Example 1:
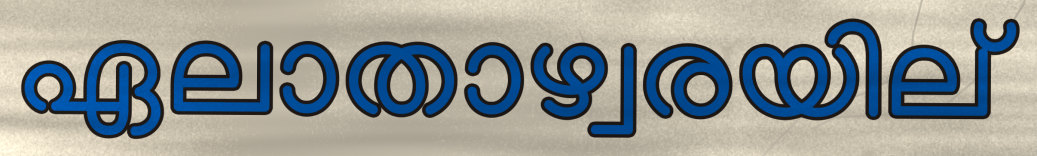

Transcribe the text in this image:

ഏലാതാഴ്വരയില്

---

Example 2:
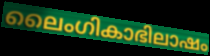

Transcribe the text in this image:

ലൈംഗികാഭിലാഷം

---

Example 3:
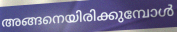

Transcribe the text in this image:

അങ്ങനെയിരിക്കുമ്പോൾ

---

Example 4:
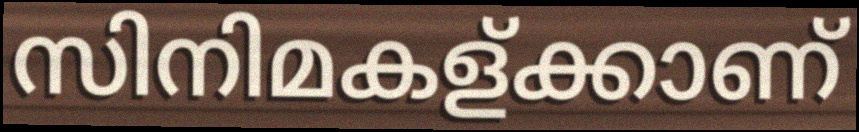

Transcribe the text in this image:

സിനിമകള്ക്കാണ്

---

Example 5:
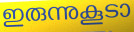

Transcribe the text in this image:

ഇരുന്നുകൂടാ